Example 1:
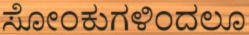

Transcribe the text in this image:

ಸೋಂಕುಗಳಿಂದಲೂ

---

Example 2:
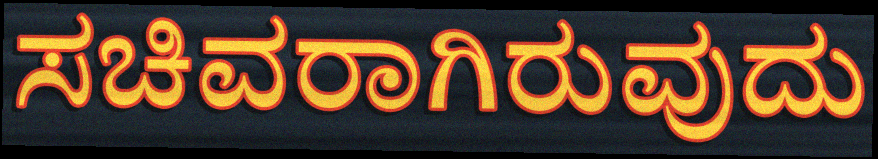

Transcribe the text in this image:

ಸಚಿವರಾಗಿರುವುದು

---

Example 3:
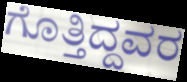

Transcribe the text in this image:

ಗೊತ್ತಿದ್ದವರ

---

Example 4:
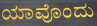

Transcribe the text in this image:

ಯಾವೊಂದು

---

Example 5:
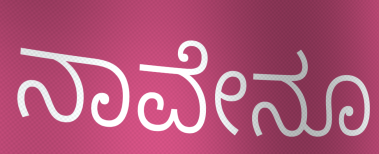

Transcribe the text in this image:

ನಾವೇನೂ